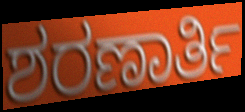
ಶರಣಾರ್ತಿ